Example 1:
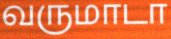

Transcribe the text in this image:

வருமாடா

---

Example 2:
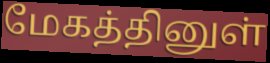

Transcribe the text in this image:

மேகத்தினுள்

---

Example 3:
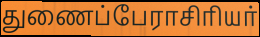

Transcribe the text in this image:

துணைப்பேராசிரியர்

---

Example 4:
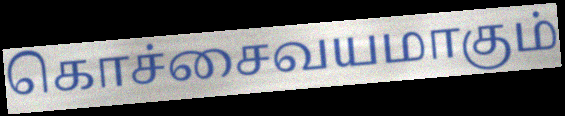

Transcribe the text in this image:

கொச்சைவயமாகும்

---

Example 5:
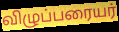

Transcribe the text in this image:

விழுப்பரையர்